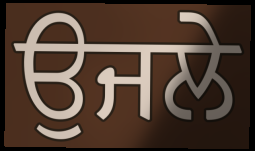
ਉਜਲੇ